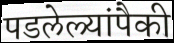
पडलेल्यांपैकी